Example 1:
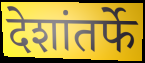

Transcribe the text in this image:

देशांतर्फे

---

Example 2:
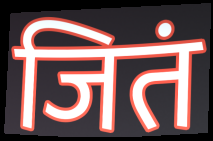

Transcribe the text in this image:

जितं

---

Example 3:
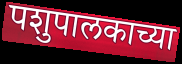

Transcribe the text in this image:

पशुपालकाच्या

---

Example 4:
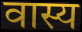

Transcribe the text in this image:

वास्य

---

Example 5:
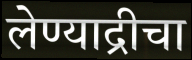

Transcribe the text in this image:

लेण्याद्रीचा